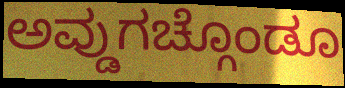
ಅವ್ಡುಗಚ್ಗೊಂಡೂ